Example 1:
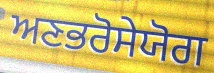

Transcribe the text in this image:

ਅਣਭਰੋਸੇਯੋਗ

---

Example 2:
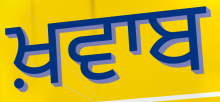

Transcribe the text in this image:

ਖ਼ਵਾਬ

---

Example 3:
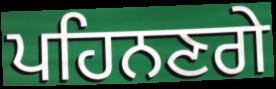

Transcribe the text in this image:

ਪਹਿਨਣਗੇ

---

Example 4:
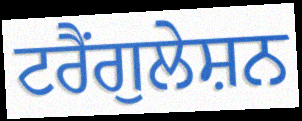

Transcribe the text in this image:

ਟਰੈਂਗੁਲੇਸ਼ਨ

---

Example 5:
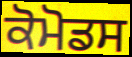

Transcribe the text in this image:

ਕੋਮੋਡਸ